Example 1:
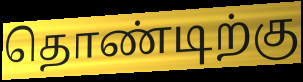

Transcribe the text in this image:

தொண்டிற்கு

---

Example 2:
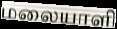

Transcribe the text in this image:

மலையாளி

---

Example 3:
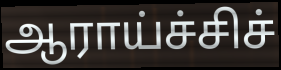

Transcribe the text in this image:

ஆராய்ச்சிச்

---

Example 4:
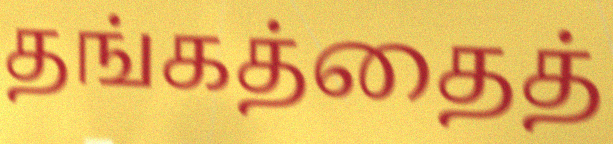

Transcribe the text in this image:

தங்கத்தைத்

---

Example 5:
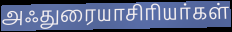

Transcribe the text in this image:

அஃதுரையாசிரியர்கள்